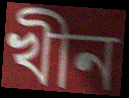
খীন